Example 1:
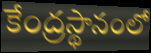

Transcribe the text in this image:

కేంద్రస్థానంలో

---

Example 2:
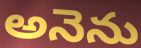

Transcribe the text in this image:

అనెను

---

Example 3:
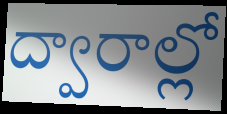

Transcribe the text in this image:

ద్వారాల్లో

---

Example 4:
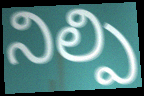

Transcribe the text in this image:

నిల్పి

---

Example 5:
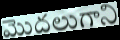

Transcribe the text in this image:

మొదలుగాని